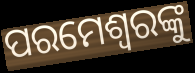
ପରମେଶ୍ୱରଙ୍କୁ